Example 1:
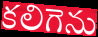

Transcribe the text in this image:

కలిగెను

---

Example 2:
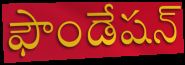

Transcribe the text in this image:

ఫౌండేషన్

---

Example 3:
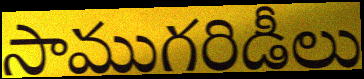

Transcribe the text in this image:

సాముగరిడీలు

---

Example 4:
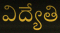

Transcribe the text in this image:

విద్యేతి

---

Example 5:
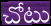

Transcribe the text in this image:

చోటు